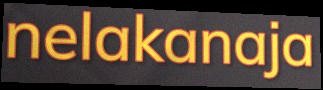
nelakanaja